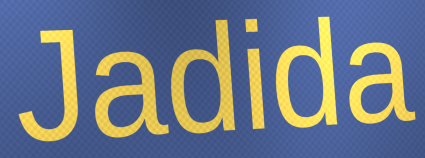
Jadida